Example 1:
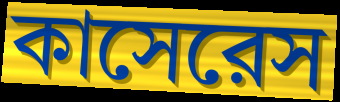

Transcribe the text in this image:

কাসেরেস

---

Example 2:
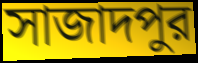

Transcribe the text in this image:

সাজাদপুর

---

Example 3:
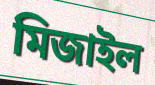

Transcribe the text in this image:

মিজাইল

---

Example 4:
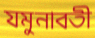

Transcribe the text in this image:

যমুনাবতী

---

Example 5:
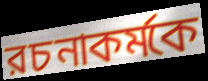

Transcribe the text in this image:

রচনাকর্মকে